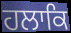
ਹਲਾਕਿ